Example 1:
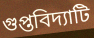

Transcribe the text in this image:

গুপ্তবিদ্যাটি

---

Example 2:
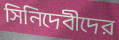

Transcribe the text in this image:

সিনিদেবীদের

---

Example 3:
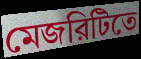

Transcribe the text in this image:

মেজরিটিতে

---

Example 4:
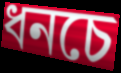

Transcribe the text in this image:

ধনচে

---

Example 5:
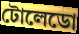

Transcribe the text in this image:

টোলেডো